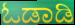
ಓಡಾಡಿ